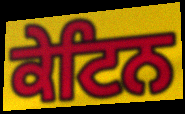
ਕੇਟਿਨ